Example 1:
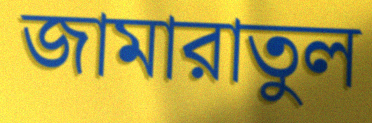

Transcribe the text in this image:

জামারাতুল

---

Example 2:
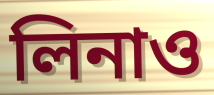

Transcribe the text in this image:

লিনাও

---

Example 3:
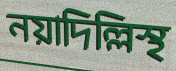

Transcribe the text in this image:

নয়াদিল্লিস্থ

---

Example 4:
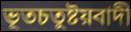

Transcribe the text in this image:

ভূতচতুষ্টয়বাদী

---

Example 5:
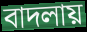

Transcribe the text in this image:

বাদলায়